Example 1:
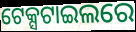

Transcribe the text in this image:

ଟେକ୍ସଟାଇଲରେ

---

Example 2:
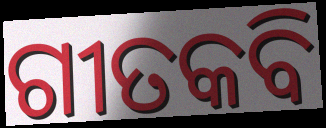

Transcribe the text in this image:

ଗୀତକବି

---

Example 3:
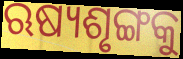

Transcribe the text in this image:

ଋଷ୍ୟଶୃଙ୍ଗକୁ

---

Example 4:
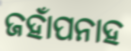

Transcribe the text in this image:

ଜହାଁପନାହ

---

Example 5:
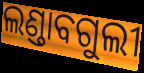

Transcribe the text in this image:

ଲଣ୍ଡାବଗୁଲୀ